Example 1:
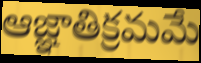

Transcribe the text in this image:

ఆజ్ఞాతిక్రమమే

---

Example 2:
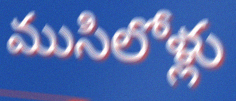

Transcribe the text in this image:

ముసిలోళ్లు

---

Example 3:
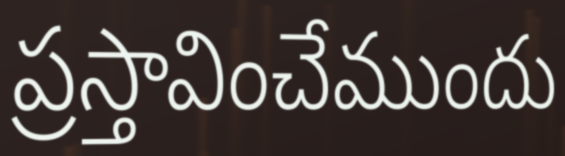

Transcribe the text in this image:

ప్రస్తావించేముందు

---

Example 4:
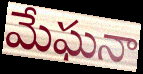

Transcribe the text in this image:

మేఘనా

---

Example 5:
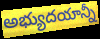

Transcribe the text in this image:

అభ్యుదయాన్నీ